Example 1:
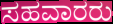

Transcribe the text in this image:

ಸಹವಾರರು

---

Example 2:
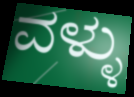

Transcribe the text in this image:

ವಳ್ಳು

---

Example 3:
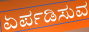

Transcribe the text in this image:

ಏರ್ಪಡಿಸುವ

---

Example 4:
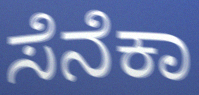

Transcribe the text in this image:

ಸೆನೆಕಾ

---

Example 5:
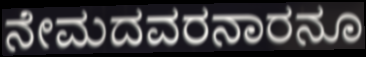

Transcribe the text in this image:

ನೇಮದವರನಾರನೂ